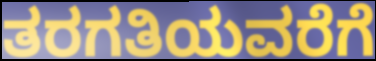
ತರಗತಿಯವರೆಗೆ